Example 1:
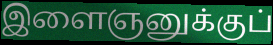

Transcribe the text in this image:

இளைஞனுக்குப்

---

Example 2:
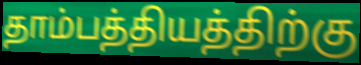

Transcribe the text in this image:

தாம்பத்தியத்திற்கு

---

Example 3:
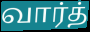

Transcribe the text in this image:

வார்த்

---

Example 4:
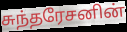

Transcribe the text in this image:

சுந்தரேசனின்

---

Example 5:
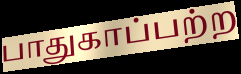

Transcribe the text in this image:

பாதுகாப்பற்ற